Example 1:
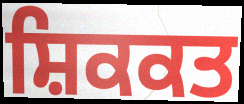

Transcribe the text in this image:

ਸ਼ਿਕਕਤ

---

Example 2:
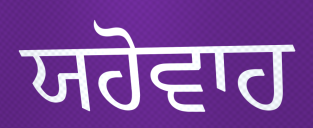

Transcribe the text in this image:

ਯਹੋਵਾਹ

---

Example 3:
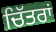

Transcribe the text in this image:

ਚਿੱਤਰਾਂ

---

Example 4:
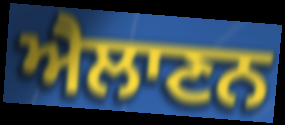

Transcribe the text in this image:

ਐਲਾਣਨ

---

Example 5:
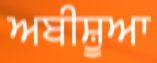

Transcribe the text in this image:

ਅਬੀਸ਼ੂਆ